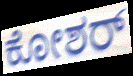
ಕೋಶರ್